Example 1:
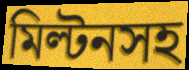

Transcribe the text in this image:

মিল্টনসহ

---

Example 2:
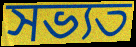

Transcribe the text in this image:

সভ্যত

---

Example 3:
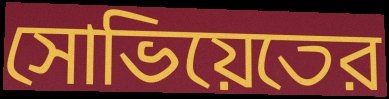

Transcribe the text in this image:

সোভিয়েতের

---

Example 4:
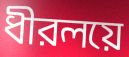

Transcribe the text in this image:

ধীরলয়ে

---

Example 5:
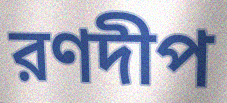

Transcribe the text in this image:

রণদীপ